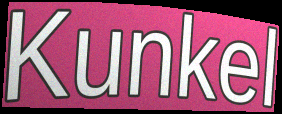
Kunkel